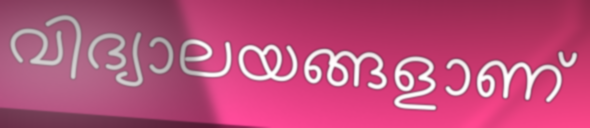
വിദ്യാലയങ്ങളാണ്